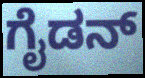
ಗೈಡನ್